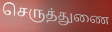
செருத்துணை